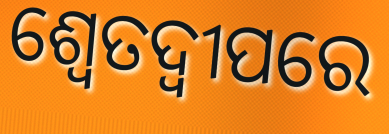
ଶ୍ୱେତଦ୍ୱୀପରେ